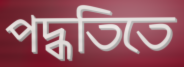
পদ্ধতিতে